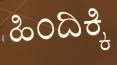
ಹಿಂದಿಕ್ಕಿ